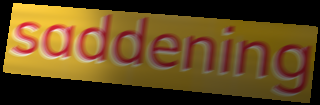
saddening